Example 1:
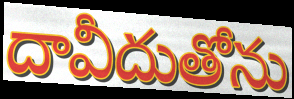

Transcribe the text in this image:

దావీదుతోను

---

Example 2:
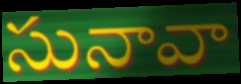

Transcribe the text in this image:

సునావా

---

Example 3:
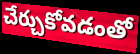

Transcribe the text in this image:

చేర్చుకోవడంతో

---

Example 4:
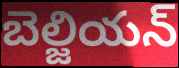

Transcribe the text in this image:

బెల్జియన్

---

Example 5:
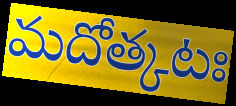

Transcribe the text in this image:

మదోత్కటః